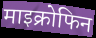
माइक्रोफिन